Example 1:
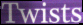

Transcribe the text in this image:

Twists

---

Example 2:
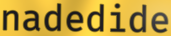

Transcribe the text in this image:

nadedide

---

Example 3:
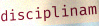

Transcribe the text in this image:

disciplinam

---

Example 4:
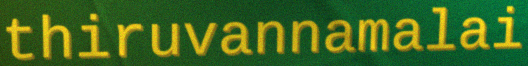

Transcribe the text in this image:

thiruvannamalai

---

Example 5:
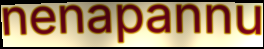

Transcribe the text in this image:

nenapannu